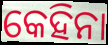
କେହିନା